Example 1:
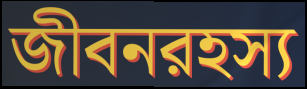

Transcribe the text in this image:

জীবনরহস্য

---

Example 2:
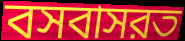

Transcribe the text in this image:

বসবাসরত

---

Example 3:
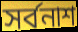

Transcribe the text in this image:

সর্বনাশ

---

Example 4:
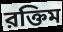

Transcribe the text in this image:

রক্তিম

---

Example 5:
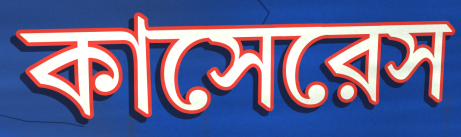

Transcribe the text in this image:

কাসেরেস